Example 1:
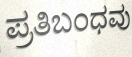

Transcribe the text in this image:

ಪ್ರತಿಬಂಧವು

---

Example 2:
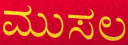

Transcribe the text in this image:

ಮುಸಲ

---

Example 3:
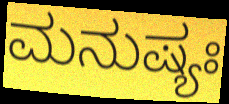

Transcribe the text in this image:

ಮನುಷ್ಯಃ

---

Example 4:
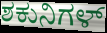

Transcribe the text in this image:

ಶಕುನಿಗಳ್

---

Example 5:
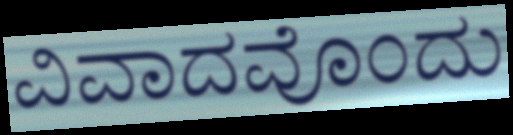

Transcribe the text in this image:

ವಿವಾದವೊಂದು